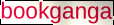
bookganga